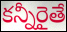
కన్నీరైతే